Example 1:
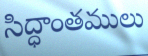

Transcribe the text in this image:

సిద్ధాంతములు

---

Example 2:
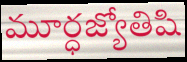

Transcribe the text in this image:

మూర్ధజ్యోతిషి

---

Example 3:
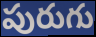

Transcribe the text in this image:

పురుగు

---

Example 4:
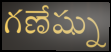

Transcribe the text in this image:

గణేష్ను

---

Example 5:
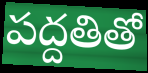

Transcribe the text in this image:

పద్దతితో